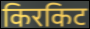
किरकिट